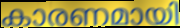
കാരണമായി